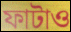
ফাটাও